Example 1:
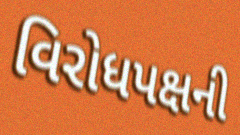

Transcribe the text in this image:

વિરોધપક્ષની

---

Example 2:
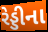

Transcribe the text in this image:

રેડ્ડીના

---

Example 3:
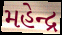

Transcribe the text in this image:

મહેન્દ્ર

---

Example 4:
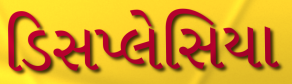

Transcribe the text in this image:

ડિસપ્લેસિયા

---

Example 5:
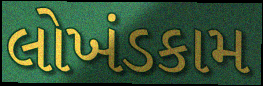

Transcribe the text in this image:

લોખંડકામ